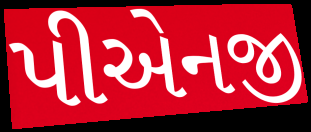
પીએનજી